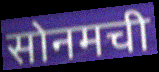
सोनमची